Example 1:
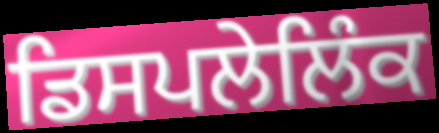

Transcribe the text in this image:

ਡਿਸਪਲੇਲਿੰਕ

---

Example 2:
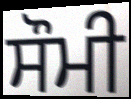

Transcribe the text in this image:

ਸੌਮੀ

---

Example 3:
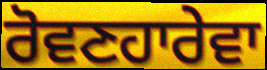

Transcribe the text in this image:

ਰੋਵਣਹਾਰੇਵਾ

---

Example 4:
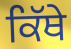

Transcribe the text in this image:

ਕਿੱਥੇ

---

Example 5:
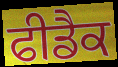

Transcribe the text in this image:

ਫੀਡੈਕ